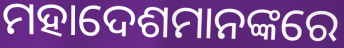
ମହାଦେଶମାନଙ୍କରେ